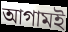
আগামই